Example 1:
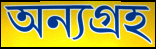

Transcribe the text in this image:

অন্যগ্রহ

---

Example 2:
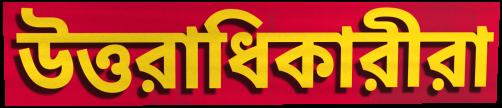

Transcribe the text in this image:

উত্তরাধিকারীরা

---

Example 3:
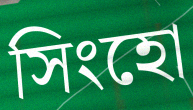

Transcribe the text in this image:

সিংহো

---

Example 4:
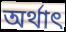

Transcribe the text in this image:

অর্থাৎ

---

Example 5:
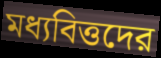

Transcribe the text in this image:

মধ্যবিত্তদের